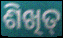
ଶିଖିତ୍